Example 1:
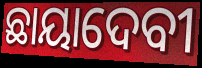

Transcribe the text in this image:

ଛାୟାଦେବୀ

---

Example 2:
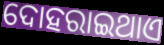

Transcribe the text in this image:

ଦୋହରାଇଥାଏ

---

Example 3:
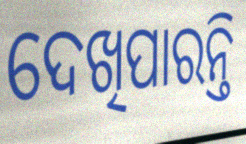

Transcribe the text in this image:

ଦେଖିପାରନ୍ତି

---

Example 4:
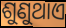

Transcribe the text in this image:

ଶୁଣୁଥାଏ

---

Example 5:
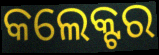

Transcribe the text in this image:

କଲେକ୍ଟର